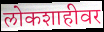
लोकशाहीवर